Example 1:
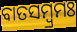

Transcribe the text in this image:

ବାତସମ୍ବ୍ରମଃ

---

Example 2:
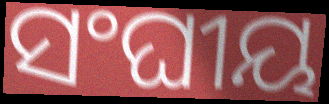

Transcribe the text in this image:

ସଂଘୀୟ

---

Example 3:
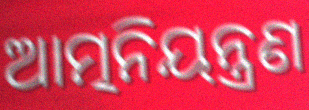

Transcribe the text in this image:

ଆତ୍ମନିୟନ୍ତ୍ରଣ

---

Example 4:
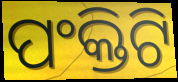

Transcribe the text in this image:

ପଂକ୍ତିଟି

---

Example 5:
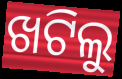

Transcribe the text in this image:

ଖଟିଲୁ